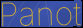
Panot